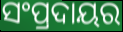
ସଂପ୍ରଦାୟର